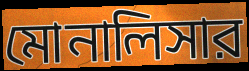
মোনালিসার